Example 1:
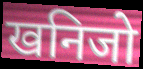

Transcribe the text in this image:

खनिजो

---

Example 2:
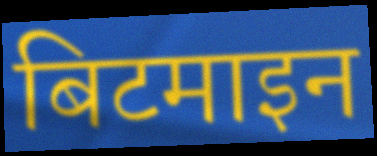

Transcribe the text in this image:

बिटमाइन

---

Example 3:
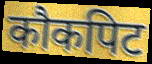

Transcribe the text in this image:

कौकपिट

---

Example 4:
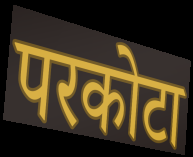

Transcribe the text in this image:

परकोटा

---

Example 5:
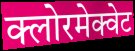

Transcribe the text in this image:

क्लोरमेक्वेट